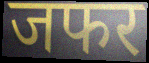
जफर